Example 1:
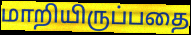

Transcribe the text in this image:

மாறியிருப்பதை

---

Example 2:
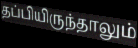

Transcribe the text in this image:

தப்பியிருந்தாலும்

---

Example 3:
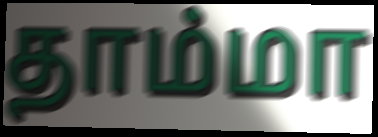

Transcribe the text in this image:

தாம்மா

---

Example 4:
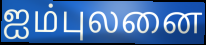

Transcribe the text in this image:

ஐம்புலனை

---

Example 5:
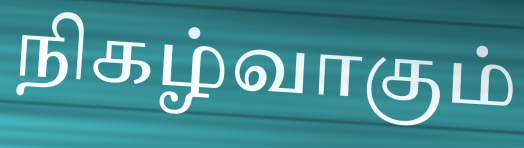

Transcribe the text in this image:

நிகழ்வாகும்